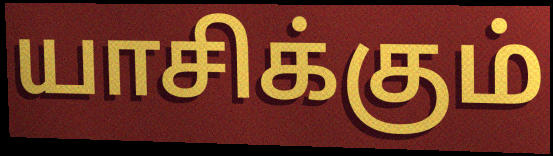
யாசிக்கும்